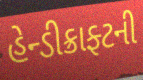
હેન્ડીક્રાફ્ટની